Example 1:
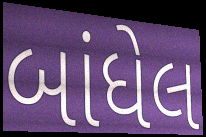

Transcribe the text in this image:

બાંધેલ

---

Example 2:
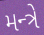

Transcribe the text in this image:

મન્ત્રે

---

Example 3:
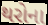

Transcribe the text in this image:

થરોના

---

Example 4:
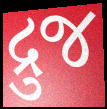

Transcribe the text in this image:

દ્રુજ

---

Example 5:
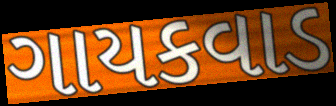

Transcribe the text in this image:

ગાયકવાડ